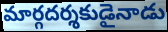
మార్గదర్శకుడైనాడు